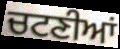
ਚਟਣੀਆਂ